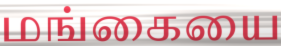
மங்கையை